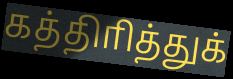
கத்திரித்துக்